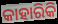
କାହାରିକି